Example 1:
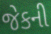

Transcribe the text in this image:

જેકની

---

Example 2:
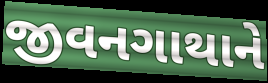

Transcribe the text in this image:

જીવનગાથાને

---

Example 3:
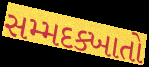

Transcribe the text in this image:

સમ્મદક્ખાતો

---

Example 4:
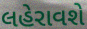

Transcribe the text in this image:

લહેરાવશે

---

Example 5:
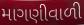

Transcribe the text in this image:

માગણીવાળી